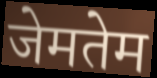
जेमतेम